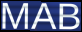
MAB